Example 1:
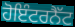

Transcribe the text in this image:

ਹੋਇੰਟਰਨੈੱਟ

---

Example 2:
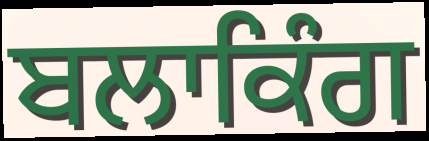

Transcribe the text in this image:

ਬਲਾਕਿੰਗ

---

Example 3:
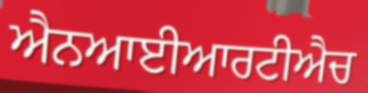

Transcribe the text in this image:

ਐਨਆਈਆਰਟੀਐਚ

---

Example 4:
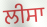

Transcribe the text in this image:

ਲੀਸਾ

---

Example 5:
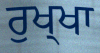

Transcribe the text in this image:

ਰੁਖ੍ਖਾ